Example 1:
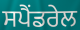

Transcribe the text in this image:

ਸਪੈਂਡਰੇਲ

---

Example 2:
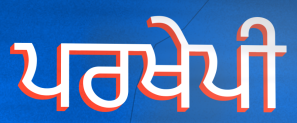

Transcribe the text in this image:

ਪਰਖੇਪੀ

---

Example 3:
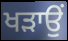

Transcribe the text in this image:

ਖੜਾਉਂ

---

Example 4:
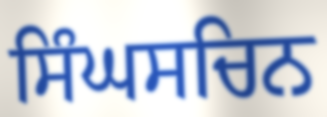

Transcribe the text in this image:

ਸਿੰਘਸਚਿਨ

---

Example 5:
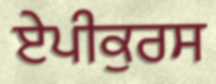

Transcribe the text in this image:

ਏਪੀਕੁਰਸ